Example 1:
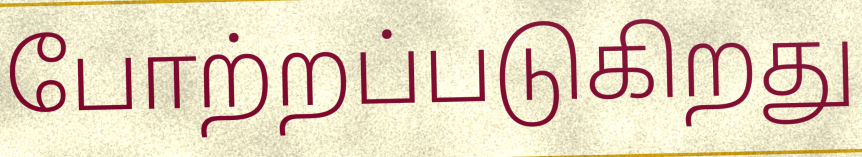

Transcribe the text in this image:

போற்றப்படுகிறது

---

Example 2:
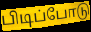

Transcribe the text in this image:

பிடிப்போடு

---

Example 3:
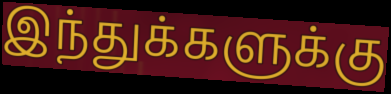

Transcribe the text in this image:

இந்துக்களுக்கு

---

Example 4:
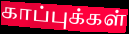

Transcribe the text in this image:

காப்புக்கள்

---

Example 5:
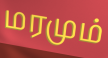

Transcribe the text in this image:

மரமும்